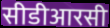
सीडीआरसी